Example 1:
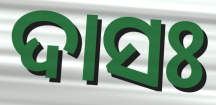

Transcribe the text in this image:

ଦାସଃ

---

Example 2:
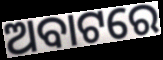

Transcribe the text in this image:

ଅବାଟରେ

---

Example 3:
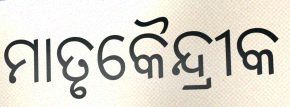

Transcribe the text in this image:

ମାତୃକୈନ୍ଦ୍ରୀକ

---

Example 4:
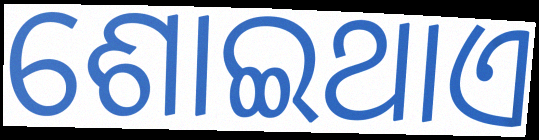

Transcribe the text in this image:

ଶୋଇଥାଏ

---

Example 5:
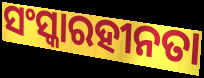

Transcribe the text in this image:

ସଂସ୍କାରହୀନତା